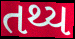
તથ્ય